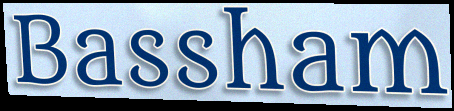
Bassham